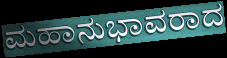
ಮಹಾನುಭಾವರಾದ